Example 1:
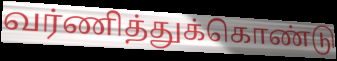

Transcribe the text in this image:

வர்ணித்துக்கொண்டு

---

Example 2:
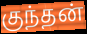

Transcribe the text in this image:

குந்தன்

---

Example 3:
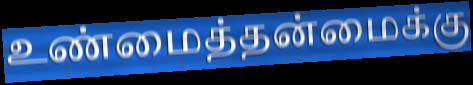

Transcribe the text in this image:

உண்மைத்தன்மைக்கு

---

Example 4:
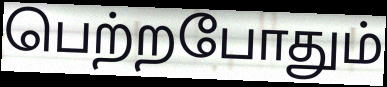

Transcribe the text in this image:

பெற்றபோதும்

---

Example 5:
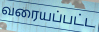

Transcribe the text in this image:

வரையப்பட்ட